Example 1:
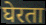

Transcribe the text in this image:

घेरता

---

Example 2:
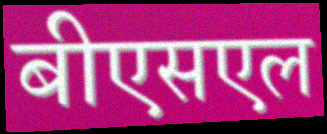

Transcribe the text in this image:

बीएसएल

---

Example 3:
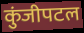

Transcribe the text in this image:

कुंजीपटल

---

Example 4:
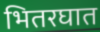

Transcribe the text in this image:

भितरघात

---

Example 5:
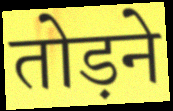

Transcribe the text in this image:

तोड़ने